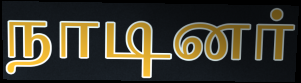
நாடினர்